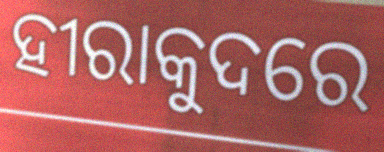
ହୀରାକୁଦରେ